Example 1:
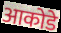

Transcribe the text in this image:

आकोडे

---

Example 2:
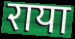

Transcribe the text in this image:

राया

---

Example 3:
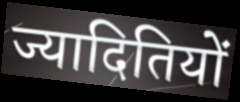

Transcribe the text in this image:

ज्यादितियों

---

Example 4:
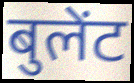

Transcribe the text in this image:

बुलेंट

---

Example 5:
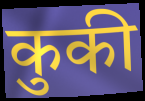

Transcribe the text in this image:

कुकी